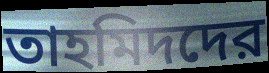
তাহমিদদের